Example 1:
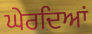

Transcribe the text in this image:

ਘੇਰਦਿਆਂ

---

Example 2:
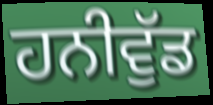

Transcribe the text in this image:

ਹਨੀਵੁੱਡ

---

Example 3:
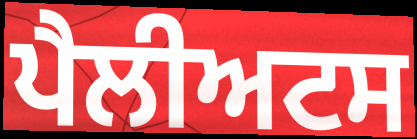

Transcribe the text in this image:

ਪੈਲੀਅਟਸ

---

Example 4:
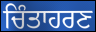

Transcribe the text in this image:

ਚਿੰਤਾਹਰਣ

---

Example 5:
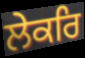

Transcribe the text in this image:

ਲੇਕਰਿ